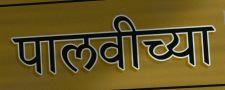
पालवीच्या